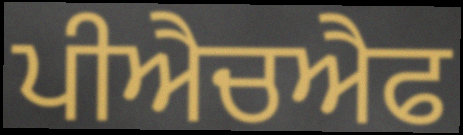
ਪੀਐਚਐਫ